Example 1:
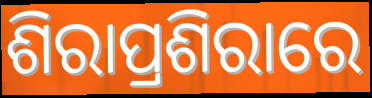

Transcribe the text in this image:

ଶିରାପ୍ରଶିରାରେ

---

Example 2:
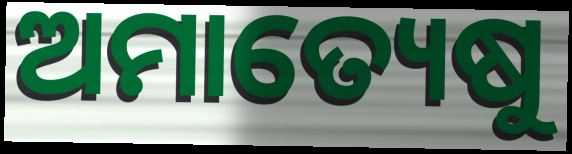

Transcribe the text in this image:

ଅମାତ୍ୟେଷୁ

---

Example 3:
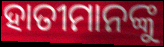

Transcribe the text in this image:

ହାତୀମାନଙ୍କୁ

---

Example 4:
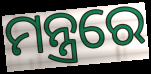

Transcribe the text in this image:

ମନ୍ତ୍ରରେ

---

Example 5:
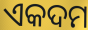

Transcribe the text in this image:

ଏକଦମ